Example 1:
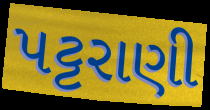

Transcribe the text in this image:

પટ્ટરાણી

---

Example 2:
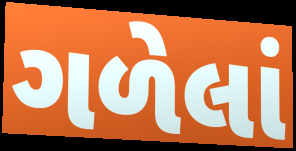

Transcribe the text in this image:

ગળેલાં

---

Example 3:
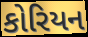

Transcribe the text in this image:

કોરિયન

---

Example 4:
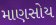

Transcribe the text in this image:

માણસોય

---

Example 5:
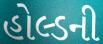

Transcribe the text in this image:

હોલ્ડની